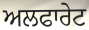
ਅਲਫਾਰੇਟ